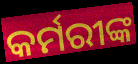
କର୍ମରୀଙ୍କ